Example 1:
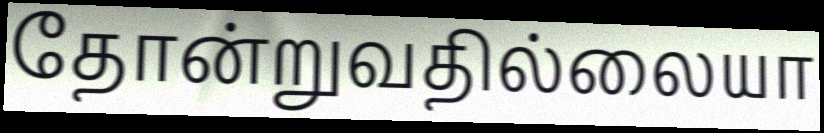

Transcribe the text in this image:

தோன்றுவதில்லையா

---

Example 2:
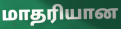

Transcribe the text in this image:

மாதரியான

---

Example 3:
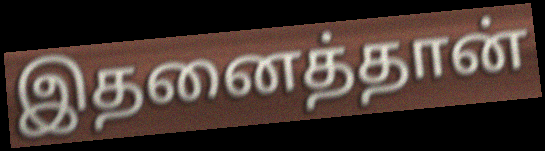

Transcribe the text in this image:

இதனைத்தான்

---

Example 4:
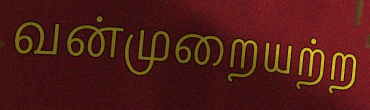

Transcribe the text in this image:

வன்முறையற்ற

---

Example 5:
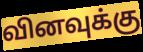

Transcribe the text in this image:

வினவுக்கு